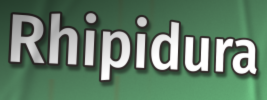
Rhipidura